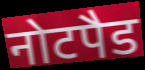
नोटपैड